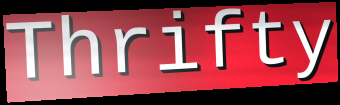
Thrifty